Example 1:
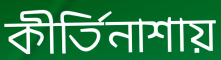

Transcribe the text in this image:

কীর্তিনাশায়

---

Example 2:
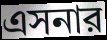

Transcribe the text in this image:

এসনার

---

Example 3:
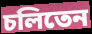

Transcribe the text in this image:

চলিতেন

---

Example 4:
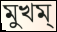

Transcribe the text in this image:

মুখম্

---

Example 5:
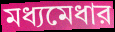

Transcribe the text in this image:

মধ্যমেধার